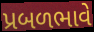
પ્રબળભાવે